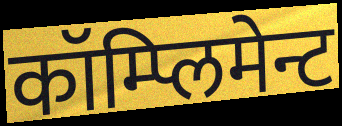
कॉम्प्लिमेन्ट